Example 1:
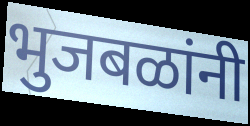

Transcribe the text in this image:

भुजबळांनी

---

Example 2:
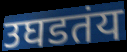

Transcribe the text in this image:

उघडतंय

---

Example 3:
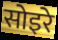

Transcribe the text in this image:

सोइरे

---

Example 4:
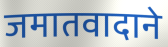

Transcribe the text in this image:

जमातवादाने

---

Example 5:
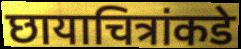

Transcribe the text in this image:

छायाचित्रांकडे